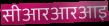
सीआरआरआइ